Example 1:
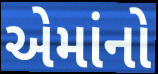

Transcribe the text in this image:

એમાંનો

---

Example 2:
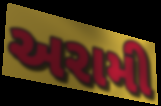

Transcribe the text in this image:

અરામી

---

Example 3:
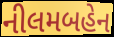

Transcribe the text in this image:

નીલમબહેન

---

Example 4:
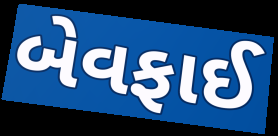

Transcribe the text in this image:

બેવફાઈ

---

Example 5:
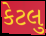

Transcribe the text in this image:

કેટલુ